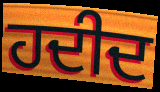
ਹਦੀਦ